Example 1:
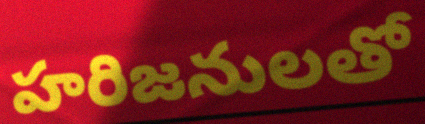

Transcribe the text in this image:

హరిజనులతో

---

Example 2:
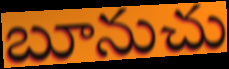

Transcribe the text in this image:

బూనుచు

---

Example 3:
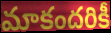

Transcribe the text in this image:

మాకందరికీ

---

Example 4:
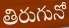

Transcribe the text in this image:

తిరుగునో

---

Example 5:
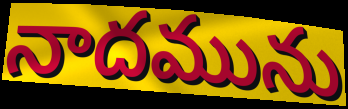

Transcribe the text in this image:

నాదమును